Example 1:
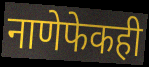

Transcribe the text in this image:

नाणेफेकही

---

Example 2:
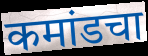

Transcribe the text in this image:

कमांडचा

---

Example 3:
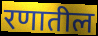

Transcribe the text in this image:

रणातील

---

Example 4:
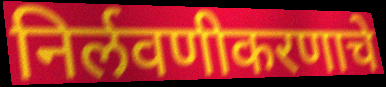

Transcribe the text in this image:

निर्लवणीकरणाचे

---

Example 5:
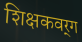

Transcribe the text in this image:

शिक्षकवर्ग